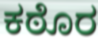
ಕಠೊರ